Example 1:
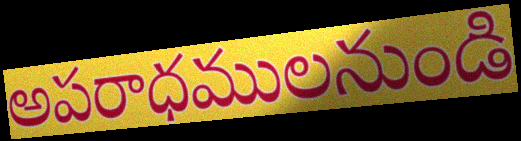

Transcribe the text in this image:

అపరాధములనుండి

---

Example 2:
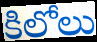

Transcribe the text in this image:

కిలోలు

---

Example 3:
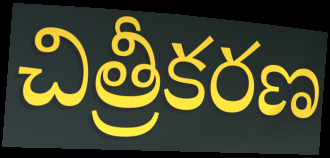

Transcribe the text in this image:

చిత్రీకరణ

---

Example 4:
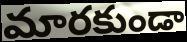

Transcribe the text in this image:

మారకుండా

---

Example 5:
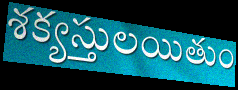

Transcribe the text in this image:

శక్యస్తులయితుం